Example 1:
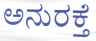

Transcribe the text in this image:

ಅನುರಕ್ತೆ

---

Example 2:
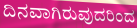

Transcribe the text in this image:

ದಿನವಾಗಿರುವುದರಿಂದ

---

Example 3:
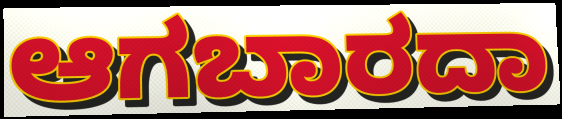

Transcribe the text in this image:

ಆಗಬಾರದಾ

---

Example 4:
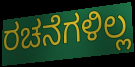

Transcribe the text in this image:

ರಚನೆಗಳಿಲ್ಲ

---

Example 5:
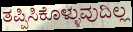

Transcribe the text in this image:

ತಪ್ಪಿಸಿಕೊಳ್ಳುವುದಿಲ್ಲ